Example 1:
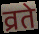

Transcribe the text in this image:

व्रते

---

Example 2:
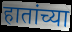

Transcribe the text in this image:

हातांच्या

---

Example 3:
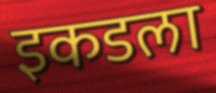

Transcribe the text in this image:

इकडला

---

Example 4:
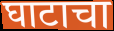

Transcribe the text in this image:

घाटाचा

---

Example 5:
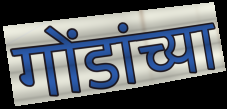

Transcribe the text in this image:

गोंडांच्या